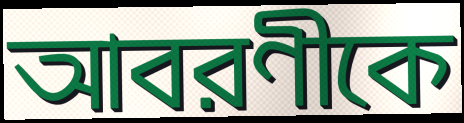
আবরণীকে